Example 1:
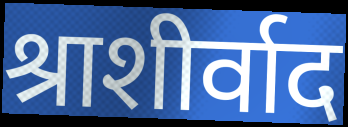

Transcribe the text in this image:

श्राशीर्वाद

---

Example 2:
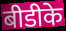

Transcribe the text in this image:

बीडीके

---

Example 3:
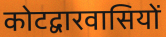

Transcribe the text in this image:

कोटद्वारवासियों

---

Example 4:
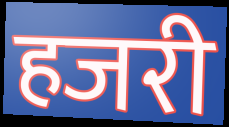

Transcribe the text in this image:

हजरी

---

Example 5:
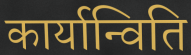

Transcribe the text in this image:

कार्यान्विति